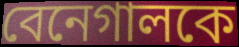
বেনেগালকে